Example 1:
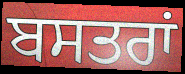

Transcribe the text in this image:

ਬਸਤਰਾਂ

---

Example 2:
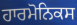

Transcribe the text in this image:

ਹਾਰਮੋਨਿਕਸ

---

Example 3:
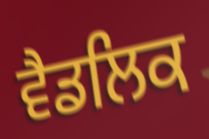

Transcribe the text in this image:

ਵੈਡਲਿਕ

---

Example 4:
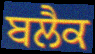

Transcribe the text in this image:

ਬਲੈਕ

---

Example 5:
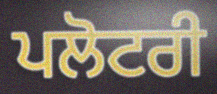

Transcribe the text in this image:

ਪਲੋਟਰੀ